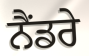
ਨੈਂਡਰੇ